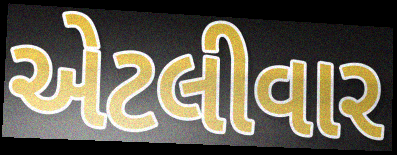
એટલીવાર